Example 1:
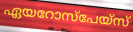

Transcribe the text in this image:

ഏയറോസ്പേയ്സ്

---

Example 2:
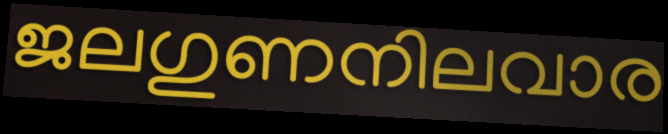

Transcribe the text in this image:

ജലഗുണനിലവാര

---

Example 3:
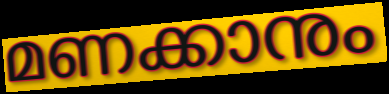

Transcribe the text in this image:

മണക്കാനും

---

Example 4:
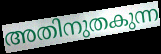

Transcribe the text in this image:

അതിനുതകുന്ന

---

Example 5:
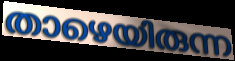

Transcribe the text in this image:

താഴെയിരുന്ന